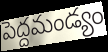
పెద్దమండ్యం